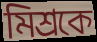
মিশ্রকে